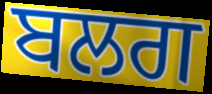
ਬਲਗ